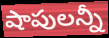
షాపులన్నీ